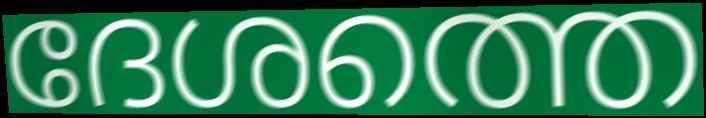
ദേശത്തെ